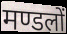
मण्डलों